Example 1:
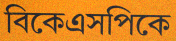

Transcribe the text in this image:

বিকেএসপিকে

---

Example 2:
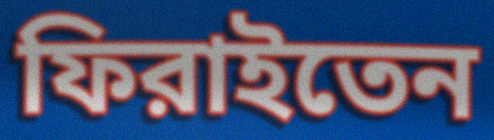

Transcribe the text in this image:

ফিরাইতেন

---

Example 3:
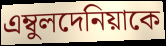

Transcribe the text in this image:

এম্বুলদেনিয়াকে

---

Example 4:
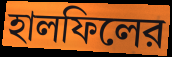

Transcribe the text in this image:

হালফিলের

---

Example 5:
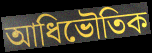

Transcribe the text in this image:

আধিভৌতিক